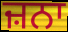
ਜ਼ਨਾ